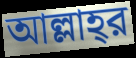
আল্লাহ্‌র